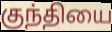
குந்தியை